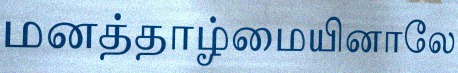
மனத்தாழ்மையினாலே